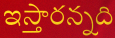
ఇస్తారన్నది